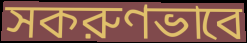
সকরুণভাবে